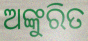
ଅଙ୍କୁରିତ